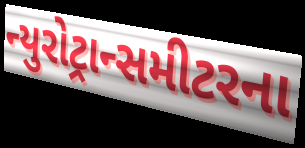
ન્યુરોટ્રાન્સમીટરના